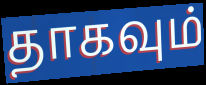
தாகவும்